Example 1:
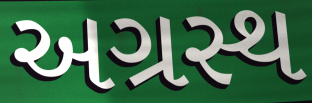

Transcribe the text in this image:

અગ્રસ્થ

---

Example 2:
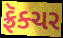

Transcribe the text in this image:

ફ્રૅક્ચર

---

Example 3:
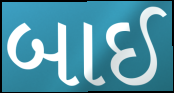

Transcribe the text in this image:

બાઈ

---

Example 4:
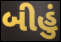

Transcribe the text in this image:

બીહું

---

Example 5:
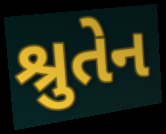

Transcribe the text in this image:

શ્રુતેન